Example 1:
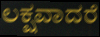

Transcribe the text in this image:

ಲಕ್ಷವಾದರೆ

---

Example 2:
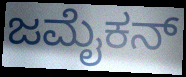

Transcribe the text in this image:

ಜಮೈಕನ್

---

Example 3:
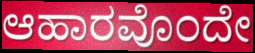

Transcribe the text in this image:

ಆಹಾರವೊಂದೇ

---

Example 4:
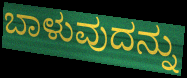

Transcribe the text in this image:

ಬಾಳುವುದನ್ನು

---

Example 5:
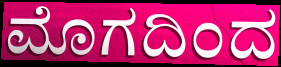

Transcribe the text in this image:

ಮೊಗದಿಂದ